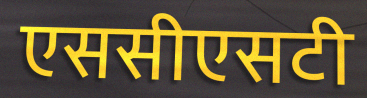
एससीएसटी